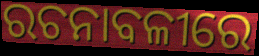
ରଚନାବଳୀରେ